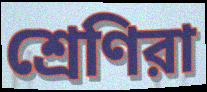
শ্রেণিরা